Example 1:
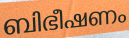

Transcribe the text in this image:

ബിഭീഷണം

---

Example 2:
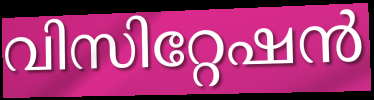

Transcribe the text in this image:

വിസിറ്റേഷൻ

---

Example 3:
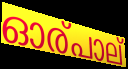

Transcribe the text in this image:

ഓര്പാല്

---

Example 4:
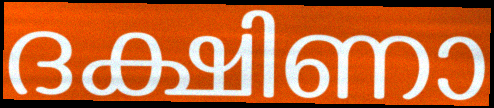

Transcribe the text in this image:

ദക്ഷിണാ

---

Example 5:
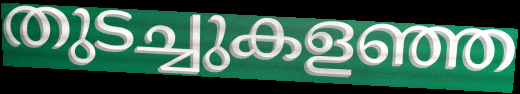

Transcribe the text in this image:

തുടച്ചുകളഞ്ഞ